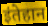
इंतेहान